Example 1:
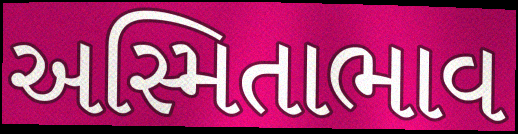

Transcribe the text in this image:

અસ્મિતાભાવ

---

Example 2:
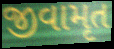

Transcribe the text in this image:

જીવામૃત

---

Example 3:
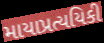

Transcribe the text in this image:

માયાપ્રત્યયિકી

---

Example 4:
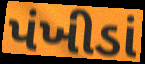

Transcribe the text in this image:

પંખીડાં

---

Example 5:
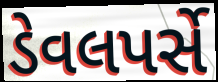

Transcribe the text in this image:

ડેવલપર્સે